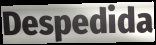
Despedida